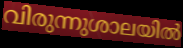
വിരുന്നുശാലയിൽ